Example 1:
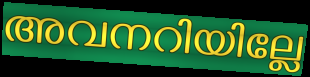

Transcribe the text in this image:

അവനറിയില്ലേ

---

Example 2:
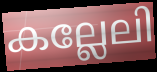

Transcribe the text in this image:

കല്ലേലി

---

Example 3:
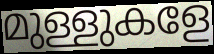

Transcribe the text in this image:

മുള്ളുകളേ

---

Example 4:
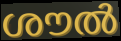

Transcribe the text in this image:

ശൗൽ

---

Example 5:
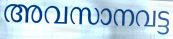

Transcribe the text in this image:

അവസാനവട്ട